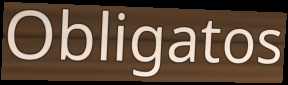
Obligatos